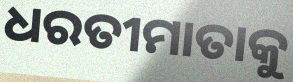
ଧରତୀମାତାକୁ